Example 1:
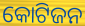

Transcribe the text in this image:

କୋଟିଜନ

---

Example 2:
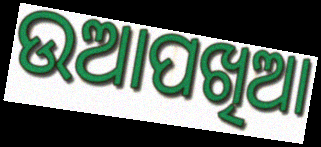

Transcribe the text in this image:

ଉଆପଖିଆ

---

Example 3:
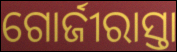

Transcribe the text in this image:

ଗୋର୍ଜୀରାସ୍ତା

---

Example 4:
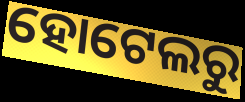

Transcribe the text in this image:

ହୋଟେଲରୁ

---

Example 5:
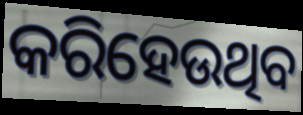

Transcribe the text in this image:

କରିହେଉଥିବ